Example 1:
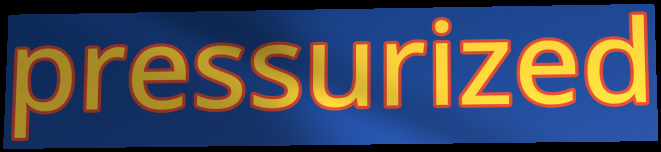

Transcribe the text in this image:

pressurized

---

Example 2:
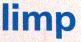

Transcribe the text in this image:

limp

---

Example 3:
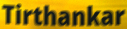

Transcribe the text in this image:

Tirthankar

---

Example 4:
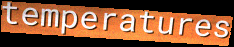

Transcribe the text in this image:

temperatures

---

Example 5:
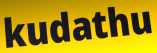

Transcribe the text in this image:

kudathu